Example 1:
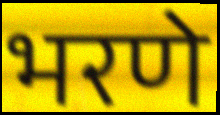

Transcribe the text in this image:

भरणे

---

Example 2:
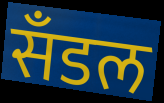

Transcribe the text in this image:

सँडल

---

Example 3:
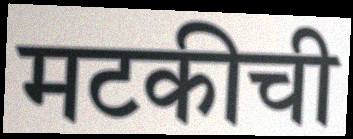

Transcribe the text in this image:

मटकीची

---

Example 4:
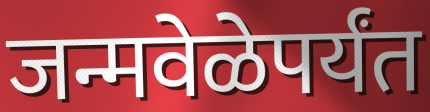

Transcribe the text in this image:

जन्मवेळेपर्यंत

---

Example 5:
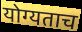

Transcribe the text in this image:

योग्यताच